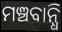
ମଞ୍ଚବାନ୍ଧି